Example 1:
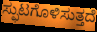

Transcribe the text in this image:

ಸ್ಫುಟಗೊಳಿಸುತ್ತದೆ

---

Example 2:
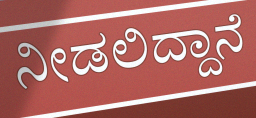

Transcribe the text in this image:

ನೀಡಲಿದ್ದಾನೆ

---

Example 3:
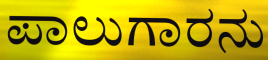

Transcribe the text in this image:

ಪಾಲುಗಾರನು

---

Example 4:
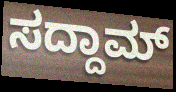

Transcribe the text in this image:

ಸದ್ದಾಮ್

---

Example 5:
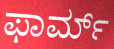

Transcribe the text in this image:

ಫಾರ್ಮ್